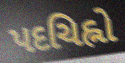
પદચિહ્નો